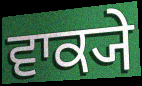
ਵਾਕ੍ਯੇ